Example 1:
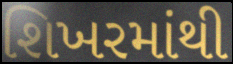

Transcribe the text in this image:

શિખરમાંથી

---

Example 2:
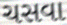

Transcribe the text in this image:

ચસવા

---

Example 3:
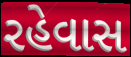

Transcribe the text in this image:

રહેવાસ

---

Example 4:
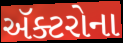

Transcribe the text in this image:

ઍક્ટરોના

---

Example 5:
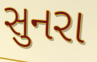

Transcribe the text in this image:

સુનરા